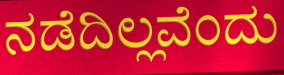
ನಡೆದಿಲ್ಲವೆಂದು